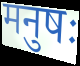
मनुषः